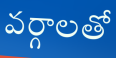
వర్గాలతో